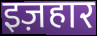
इज़हार